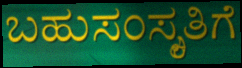
ಬಹುಸಂಸ್ಕೃತಿಗೆ